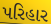
પરિહાર